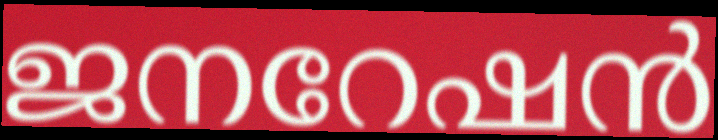
ജനറേഷൻ